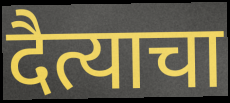
दैत्याचा